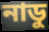
নাডু